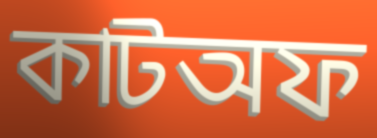
কাটঅফ